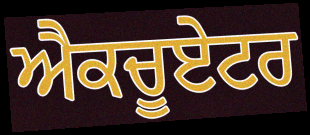
ਐਕਚੂਏਟਰ